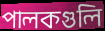
পালকগুলি